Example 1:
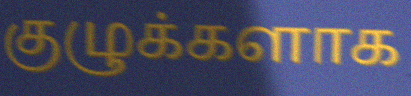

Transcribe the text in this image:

குழுக்களாக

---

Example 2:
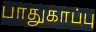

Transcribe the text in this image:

பாதுகாப்பு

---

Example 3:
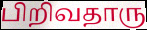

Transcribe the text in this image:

பிறிவதாரு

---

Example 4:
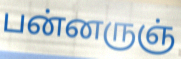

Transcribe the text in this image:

பன்னருஞ்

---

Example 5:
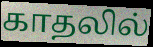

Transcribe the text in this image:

காதலில்